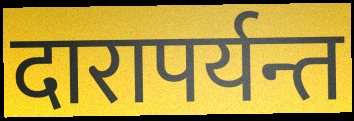
दारापर्यन्त